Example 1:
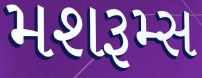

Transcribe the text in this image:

મશરૂમ્સ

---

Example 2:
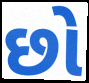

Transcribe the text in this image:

છો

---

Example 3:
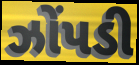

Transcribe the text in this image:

ઝોંપડી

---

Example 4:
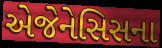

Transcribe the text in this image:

એજેનેસિસના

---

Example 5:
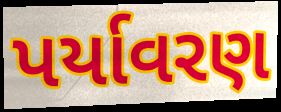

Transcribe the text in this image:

પર્યાવરણ